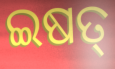
ଇଷତ୍